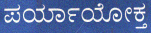
ಪರ್ಯಾಯೋಕ್ತ